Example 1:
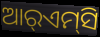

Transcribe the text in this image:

ଆର୍‌ଏମ୍‌ସି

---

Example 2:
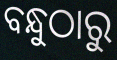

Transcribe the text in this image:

ବନ୍ଧୁଠାରୁ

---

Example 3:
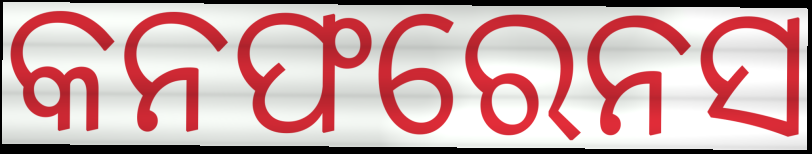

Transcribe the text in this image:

କନଫରେନସ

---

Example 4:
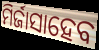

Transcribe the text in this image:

ମିର୍ଜାସାହେବ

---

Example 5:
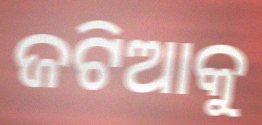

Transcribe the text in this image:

ଜଟିଆକୁ